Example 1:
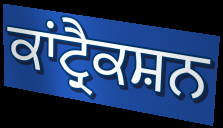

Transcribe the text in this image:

ਕਾਂਟ੍ਰੈਕਸ਼ਨ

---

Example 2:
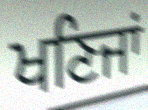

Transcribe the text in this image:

ਖਣਿਜਾਂ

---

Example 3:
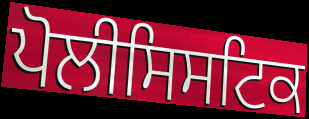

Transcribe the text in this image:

ਪੋਲੀਸਿਸਟਿਕ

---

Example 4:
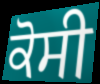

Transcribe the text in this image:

ਕੋਸੀ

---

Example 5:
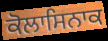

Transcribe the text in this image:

ਕੋਲਾਸਿਨਾਕ